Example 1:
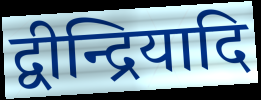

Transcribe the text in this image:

द्वीन्द्रियादि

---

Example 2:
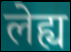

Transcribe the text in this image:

लेह्य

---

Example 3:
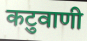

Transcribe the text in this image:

कटुवाणी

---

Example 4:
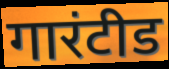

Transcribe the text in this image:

गारंटीड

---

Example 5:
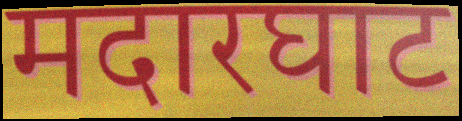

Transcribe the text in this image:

मदारघाट